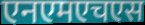
एनएमएचएस